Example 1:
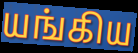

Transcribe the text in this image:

யங்கிய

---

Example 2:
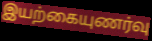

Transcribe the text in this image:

இயற்கையுணர்வு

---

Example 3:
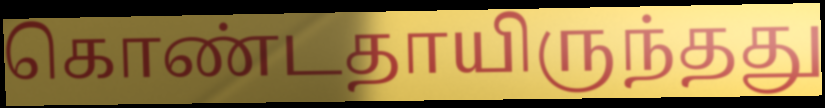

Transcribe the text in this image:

கொண்டதாயிருந்தது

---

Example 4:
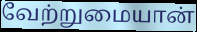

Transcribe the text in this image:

வேற்றுமையான்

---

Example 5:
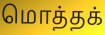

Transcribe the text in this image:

மொத்தக்